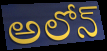
అలోన్